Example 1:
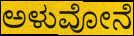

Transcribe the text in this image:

ಅಳುವೋನೆ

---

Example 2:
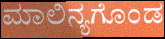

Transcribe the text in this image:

ಮಾಲಿನ್ಯಗೊಂಡ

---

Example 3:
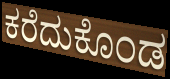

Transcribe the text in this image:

ಕರೆದುಕೊಂಡ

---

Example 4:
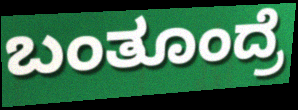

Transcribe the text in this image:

ಬಂತೂಂದ್ರೆ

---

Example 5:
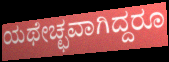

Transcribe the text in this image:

ಯಥೇಚ್ಛವಾಗಿದ್ದರೂ